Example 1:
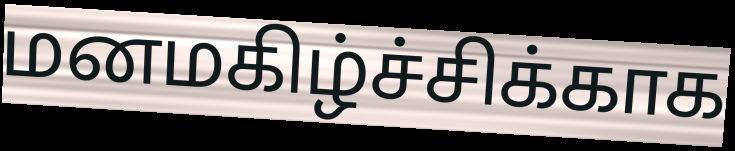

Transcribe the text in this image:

மனமகிழ்ச்சிக்காக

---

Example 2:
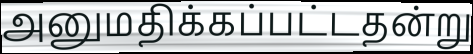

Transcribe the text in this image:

அனுமதிக்கப்பட்டதன்று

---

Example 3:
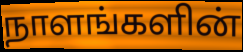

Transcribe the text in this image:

நாளங்களின்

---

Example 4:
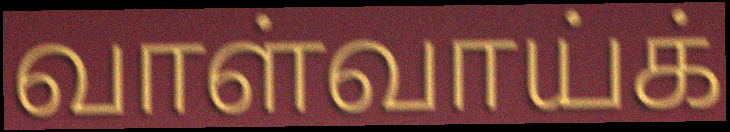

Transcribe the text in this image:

வாள்வாய்க்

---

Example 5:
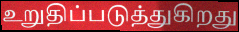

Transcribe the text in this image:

உறுதிப்படுத்துகிறது